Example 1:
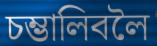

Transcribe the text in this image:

চম্ভালিবলৈ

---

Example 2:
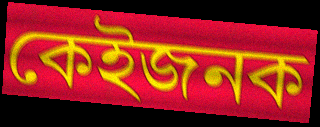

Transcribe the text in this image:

কেইজনক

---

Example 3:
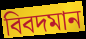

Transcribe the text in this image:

বিবদমান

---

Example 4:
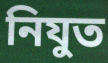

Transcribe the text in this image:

নিযুত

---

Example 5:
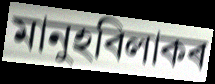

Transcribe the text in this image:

মানুহবিলাকৰ